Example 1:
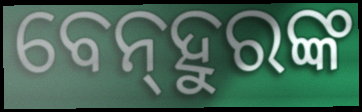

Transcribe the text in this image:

ବେନ୍‍ହୁରଙ୍କ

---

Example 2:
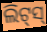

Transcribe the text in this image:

ଲିଟ୍‌ସ୍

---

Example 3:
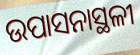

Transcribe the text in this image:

ଉପାସନାସ୍ଥଳୀ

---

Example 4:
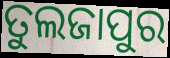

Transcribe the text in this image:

ତୁଲଜାପୁର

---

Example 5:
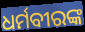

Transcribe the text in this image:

ଧର୍ମବୀରଙ୍କ